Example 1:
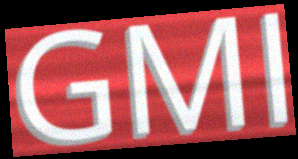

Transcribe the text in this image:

GMI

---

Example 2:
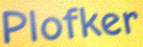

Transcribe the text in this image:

Plofker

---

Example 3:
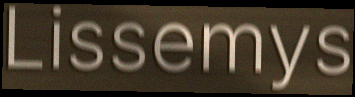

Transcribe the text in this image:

Lissemys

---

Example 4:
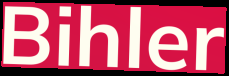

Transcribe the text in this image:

Bihler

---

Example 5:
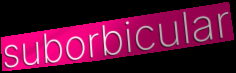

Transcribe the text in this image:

suborbicular